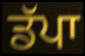
ਡੱਪਾ